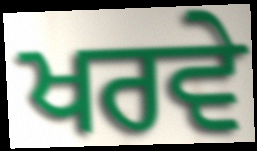
ਖਰਵੇ